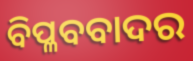
ବିପ୍ଳବବାଦର